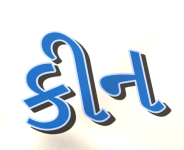
કીન